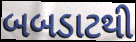
બબડાટથી